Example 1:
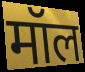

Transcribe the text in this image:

मॉल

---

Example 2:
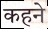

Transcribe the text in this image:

कहने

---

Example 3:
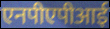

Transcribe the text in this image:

एनपीएपीआई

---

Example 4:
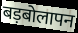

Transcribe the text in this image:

बड़बोलापन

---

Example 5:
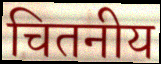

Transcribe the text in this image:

चितनीय